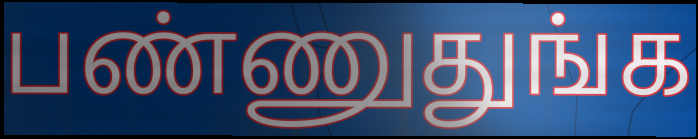
பண்ணுதுங்க